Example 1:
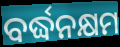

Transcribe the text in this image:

ବର୍ଦ୍ଧନକ୍ଷମ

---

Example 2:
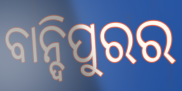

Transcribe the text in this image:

ବାନ୍ଦିପୁରର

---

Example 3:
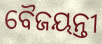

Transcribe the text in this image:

ବୈଜୟନ୍ତୀ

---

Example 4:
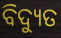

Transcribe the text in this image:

ବିଦ୍ଯୁତ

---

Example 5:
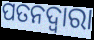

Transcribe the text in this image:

ପତନଦ୍ୱାରା